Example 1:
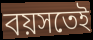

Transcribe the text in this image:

বয়সতেই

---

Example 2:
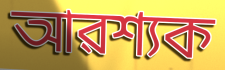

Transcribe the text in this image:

আৱশ্যক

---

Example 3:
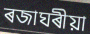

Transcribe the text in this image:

ৰজাঘৰীয়া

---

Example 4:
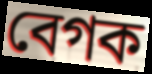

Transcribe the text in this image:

বেগক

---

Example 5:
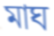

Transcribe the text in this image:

মাঘ